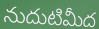
నుదుటిమీద